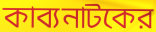
কাব্যনাটকের